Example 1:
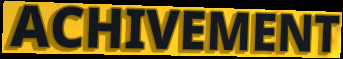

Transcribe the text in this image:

ACHIVEMENT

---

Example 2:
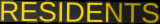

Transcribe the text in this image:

RESIDENTS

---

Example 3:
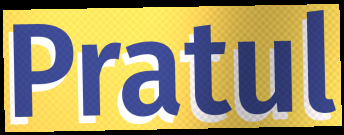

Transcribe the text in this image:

Pratul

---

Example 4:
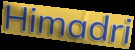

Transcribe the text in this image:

Himadri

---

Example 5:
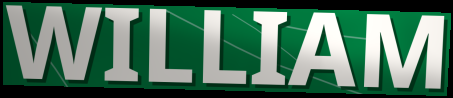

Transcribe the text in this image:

WILLIAM